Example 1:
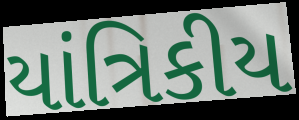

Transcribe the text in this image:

યાંત્રિકીય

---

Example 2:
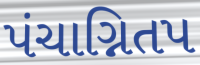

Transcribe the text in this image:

પંચાગ્નિતપ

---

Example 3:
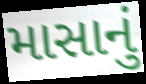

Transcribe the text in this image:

માસાનું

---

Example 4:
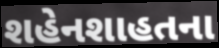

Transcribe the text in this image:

શહેનશાહતના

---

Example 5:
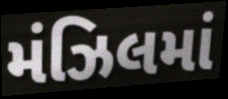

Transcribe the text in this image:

મંઝિલમાં